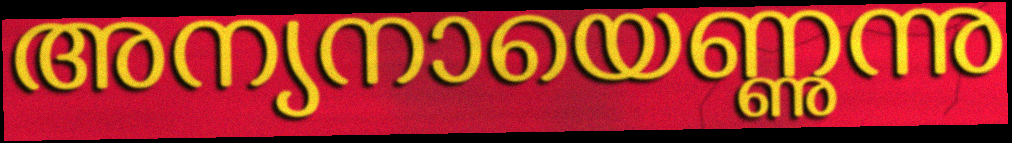
അന്യനായെണ്ണുന്നു